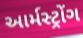
આર્મસ્ટ્રોંગ